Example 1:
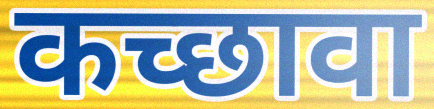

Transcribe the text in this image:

कच्छावा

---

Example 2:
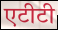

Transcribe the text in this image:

एटीटी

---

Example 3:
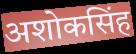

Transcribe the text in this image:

अशोकसिंह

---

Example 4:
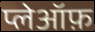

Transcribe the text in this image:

प्लेऑफ़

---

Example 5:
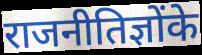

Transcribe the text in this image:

राजनीतिज्ञोंके